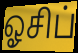
ஓசிப்